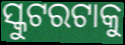
ସ୍କୁଟରଟାକୁ